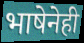
भाषेनेही